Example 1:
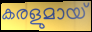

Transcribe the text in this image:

കരളുമായ്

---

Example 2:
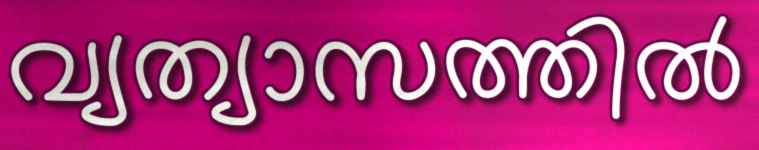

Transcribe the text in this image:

വ്യത്യാസത്തിൽ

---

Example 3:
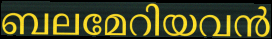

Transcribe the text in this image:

ബലമേറിയവൻ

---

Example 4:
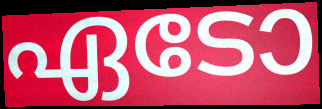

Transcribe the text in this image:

ഏടോ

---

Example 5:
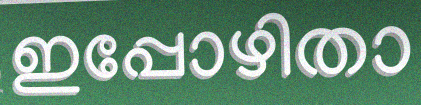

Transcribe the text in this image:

ഇപ്പോഴിതാ